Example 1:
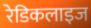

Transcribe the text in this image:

रेडिकलाइज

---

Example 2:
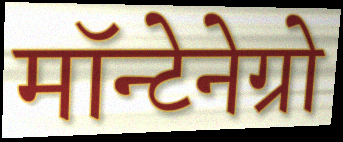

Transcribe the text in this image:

मॉन्टेनेग्रो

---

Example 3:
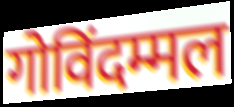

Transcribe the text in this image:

गोविंदम्मल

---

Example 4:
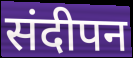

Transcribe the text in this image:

संदीपन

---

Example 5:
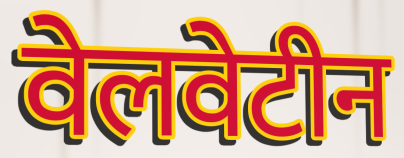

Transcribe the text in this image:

वेलवेटीन